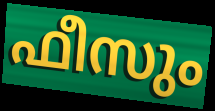
ഫീസും